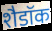
शैडॉक